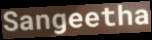
Sangeetha